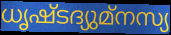
ധൃഷ്ടദ്യുമ്നസ്യ